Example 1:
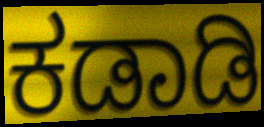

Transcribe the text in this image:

ಕಡಾಡಿ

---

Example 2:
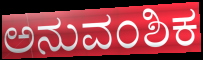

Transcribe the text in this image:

ಅನುವಂಶಿಕ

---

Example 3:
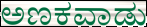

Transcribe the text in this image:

ಅಣಕವಾಡು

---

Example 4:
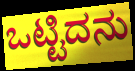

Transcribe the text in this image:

ಒಟ್ಟಿದನು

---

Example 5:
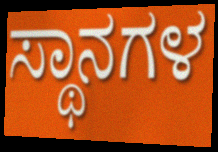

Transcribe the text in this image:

ಸ್ಥಾನಗಳ